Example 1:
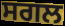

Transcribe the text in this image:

ਸਗਲ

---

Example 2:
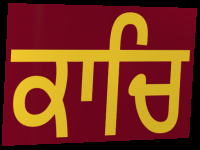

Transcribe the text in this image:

ਕਾਚਿ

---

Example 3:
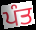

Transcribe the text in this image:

ਪੰਤ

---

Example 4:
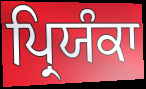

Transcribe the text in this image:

ਪ੍ਰਿਯੰਕਾ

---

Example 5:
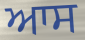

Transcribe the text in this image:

ਆਸ